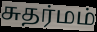
சுதர்மம்